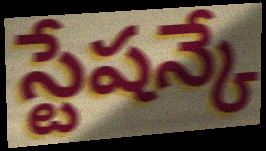
స్టేషన్కే